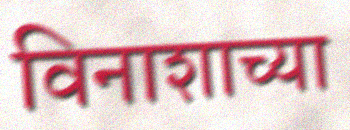
विनाशाच्या